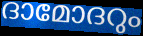
ദാമോദറും